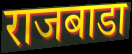
राजबाडा